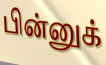
பின்னுக்